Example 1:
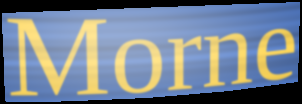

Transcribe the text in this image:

Morne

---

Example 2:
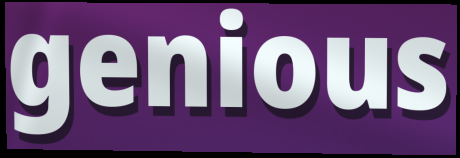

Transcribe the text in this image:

genious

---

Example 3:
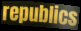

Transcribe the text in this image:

republics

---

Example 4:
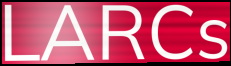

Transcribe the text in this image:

LARCs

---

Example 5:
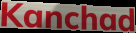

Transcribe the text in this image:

Kanchad